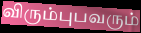
விரும்புபவரும்